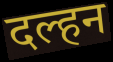
दल्हन